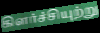
கிளர்ச்சியுற்று